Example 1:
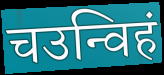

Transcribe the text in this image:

चउन्विहं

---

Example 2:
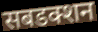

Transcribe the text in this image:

सबडक्शन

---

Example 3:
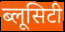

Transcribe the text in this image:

ब्लूसिटी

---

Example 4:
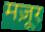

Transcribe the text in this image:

मज़ूर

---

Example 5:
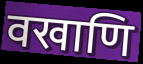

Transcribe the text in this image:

वखाणि